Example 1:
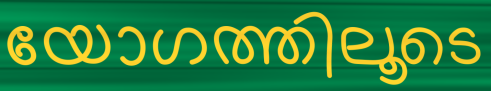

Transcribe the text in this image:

യോഗത്തിലൂടെ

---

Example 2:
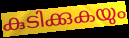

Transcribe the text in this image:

കുടിക്കുകയും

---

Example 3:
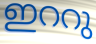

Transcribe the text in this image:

ഇററു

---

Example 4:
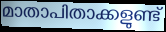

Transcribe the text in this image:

മാതാപിതാക്കളുണ്ട്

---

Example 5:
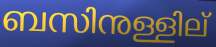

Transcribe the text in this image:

ബസിനുള്ളില്